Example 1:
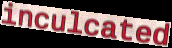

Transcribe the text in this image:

inculcated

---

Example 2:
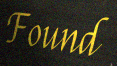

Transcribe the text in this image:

Found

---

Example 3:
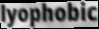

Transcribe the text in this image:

lyophobic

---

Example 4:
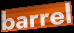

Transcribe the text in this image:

barrel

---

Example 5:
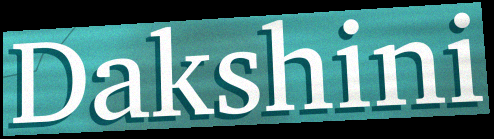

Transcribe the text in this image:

Dakshini